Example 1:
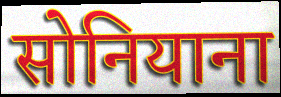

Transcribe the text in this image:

सोनियाना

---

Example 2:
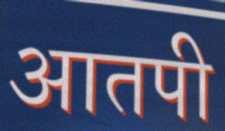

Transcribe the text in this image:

आतपी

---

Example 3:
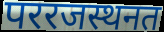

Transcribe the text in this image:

पररजस्थनत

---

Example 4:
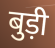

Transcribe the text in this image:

बुड़ी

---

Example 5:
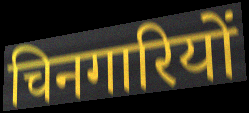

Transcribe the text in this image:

चिनगारियों